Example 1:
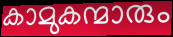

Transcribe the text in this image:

കാമുകന്മാരും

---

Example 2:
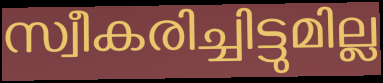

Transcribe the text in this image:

സ്വീകരിച്ചിട്ടുമില്ല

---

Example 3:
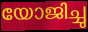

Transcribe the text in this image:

യോജിച്ചു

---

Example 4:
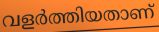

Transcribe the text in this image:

വളർത്തിയതാണ്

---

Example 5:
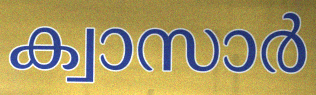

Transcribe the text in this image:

ക്വാസാർ